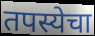
तपस्येचा